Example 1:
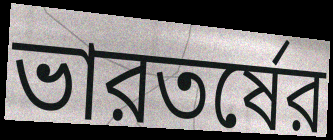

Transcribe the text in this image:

ভারতর্ষের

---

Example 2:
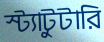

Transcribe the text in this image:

স্ট্যাটুটারি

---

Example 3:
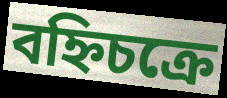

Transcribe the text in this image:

বহ্নিচক্রে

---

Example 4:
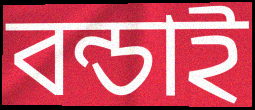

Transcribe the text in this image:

বন্ডাই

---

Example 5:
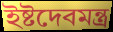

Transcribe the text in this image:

ইষ্টদেবমন্ত্র